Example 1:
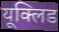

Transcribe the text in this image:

यूक्लिड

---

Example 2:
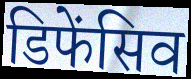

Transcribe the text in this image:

डिफेंसिव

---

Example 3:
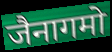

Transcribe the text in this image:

जैनागमो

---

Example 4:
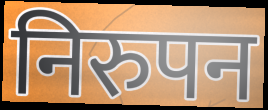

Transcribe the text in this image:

निरुपन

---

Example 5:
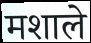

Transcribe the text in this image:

मशाले